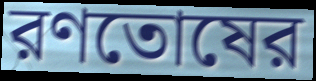
রণতোষের